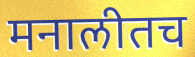
मनालीतच